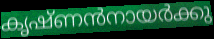
കൃഷ്ണൻനായർക്കു